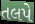
તલપે